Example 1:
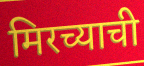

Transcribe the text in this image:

मिरच्याची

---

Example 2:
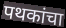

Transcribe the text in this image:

पथकांचा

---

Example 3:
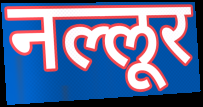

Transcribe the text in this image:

नल्लूर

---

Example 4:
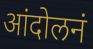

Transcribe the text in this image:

आंदोलनं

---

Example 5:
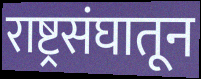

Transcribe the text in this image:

राष्ट्रसंघातून